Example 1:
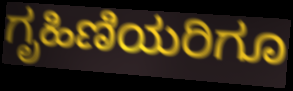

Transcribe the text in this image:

ಗೃಹಿಣಿಯರಿಗೂ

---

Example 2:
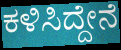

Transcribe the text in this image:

ಕಳಿಸಿದ್ದೇನೆ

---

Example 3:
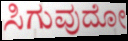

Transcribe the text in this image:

ಸಿಗುವುದೋ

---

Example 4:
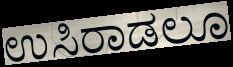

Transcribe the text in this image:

ಉಸಿರಾಡಲೂ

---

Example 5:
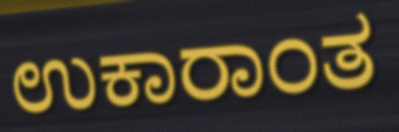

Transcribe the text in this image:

ಉಕಾರಾಂತ